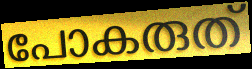
പോകരുത്